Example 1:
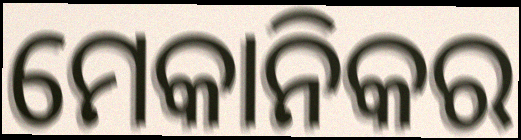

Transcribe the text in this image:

ମେକାନିକର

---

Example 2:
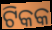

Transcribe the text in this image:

ଟିକକ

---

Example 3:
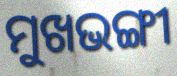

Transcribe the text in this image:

ମୁଖଭଙ୍ଗୀ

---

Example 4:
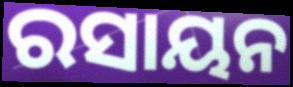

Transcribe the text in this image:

ରସାୟନ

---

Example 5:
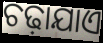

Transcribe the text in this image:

ଚଢ଼ାଯାଏ